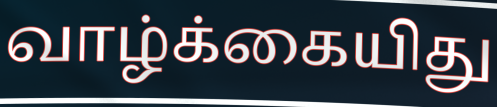
வாழ்க்கையிது